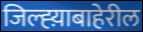
जिल्ह्य़ाबाहेरील